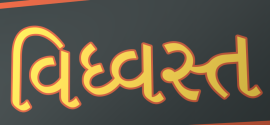
વિધ્વસ્ત